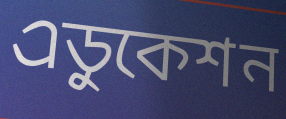
এডুকেশন